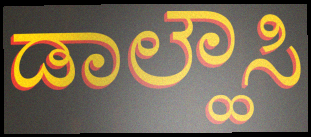
ಡಾಲ್ಹೌಸಿ